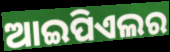
ଆଇପିଏଲର